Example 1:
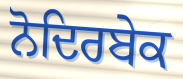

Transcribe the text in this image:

ਨੋਦਿਰਬੇਕ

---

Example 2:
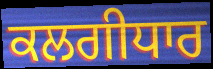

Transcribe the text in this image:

ਕਲਗੀਧਾਰ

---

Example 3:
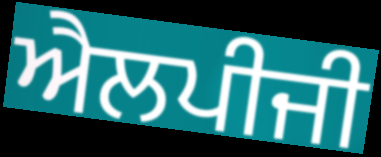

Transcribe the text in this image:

ਐਲਪੀਜੀ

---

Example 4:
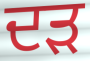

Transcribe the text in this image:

ਦੜ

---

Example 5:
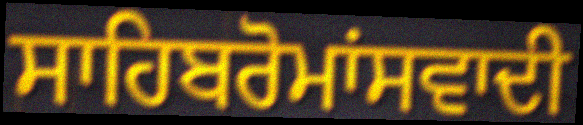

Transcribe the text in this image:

ਸਾਹਿਬਰੋਮਾਂਸਵਾਦੀ